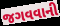
જગવવાની